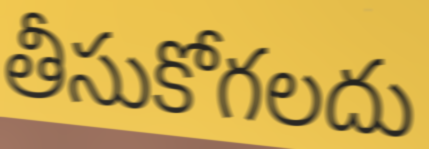
తీసుకోగలదు